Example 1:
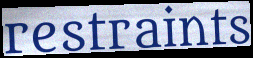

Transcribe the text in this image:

restraints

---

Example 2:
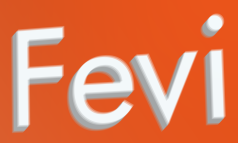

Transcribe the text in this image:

Fevi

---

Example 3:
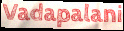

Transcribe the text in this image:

Vadapalani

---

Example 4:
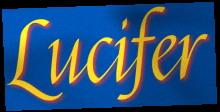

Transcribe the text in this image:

Lucifer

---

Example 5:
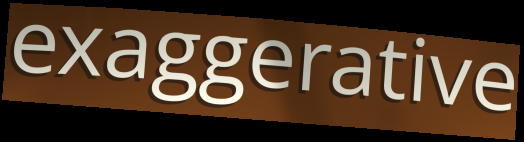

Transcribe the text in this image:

exaggerative